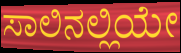
ಸಾಲಿನಲ್ಲಿಯೇ